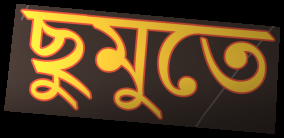
ছুমুতে